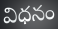
విధనం